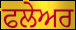
ਫਲੇਅਰ